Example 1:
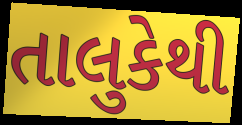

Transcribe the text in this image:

તાલુકેથી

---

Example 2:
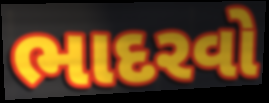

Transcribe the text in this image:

ભાદરવો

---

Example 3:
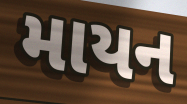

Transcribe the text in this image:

માયન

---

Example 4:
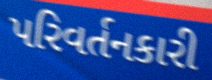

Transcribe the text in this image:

પરિવર્તનકારી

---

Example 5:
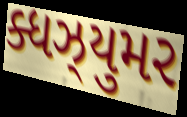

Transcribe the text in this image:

ક્ધઝ્યુમર